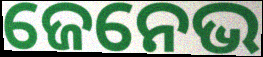
ଜେନେଭ